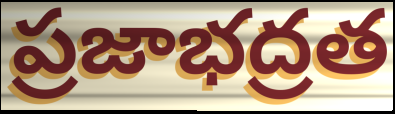
ప్రజాభద్రత